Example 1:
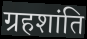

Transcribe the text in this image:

ग्रहशांति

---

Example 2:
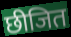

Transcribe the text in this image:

छीजित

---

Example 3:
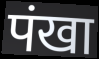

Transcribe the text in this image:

पंखा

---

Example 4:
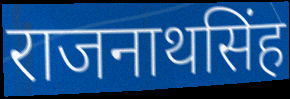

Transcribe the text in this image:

राजनाथसिंह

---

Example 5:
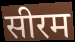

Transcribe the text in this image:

सीरम